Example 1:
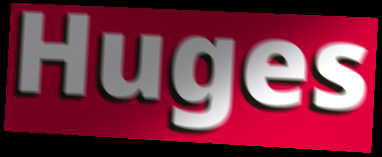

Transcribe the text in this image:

Huges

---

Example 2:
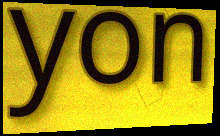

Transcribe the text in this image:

yon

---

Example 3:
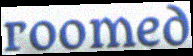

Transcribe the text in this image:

roomed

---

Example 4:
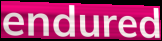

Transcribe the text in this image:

endured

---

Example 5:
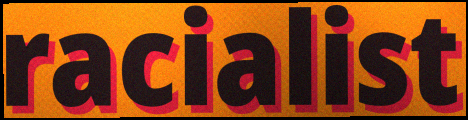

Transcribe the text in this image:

racialist